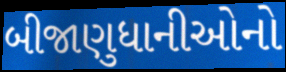
બીજાણુધાનીઓનો